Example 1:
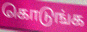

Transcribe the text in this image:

கொடுங்க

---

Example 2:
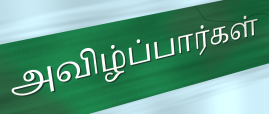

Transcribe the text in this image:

அவிழ்ப்பார்கள்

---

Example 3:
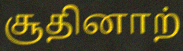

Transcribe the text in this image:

சூதினாற்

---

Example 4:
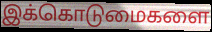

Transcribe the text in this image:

இக்கொடுமைகளை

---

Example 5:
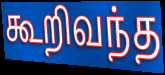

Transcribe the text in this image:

கூறிவந்த